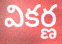
వికర్ణ